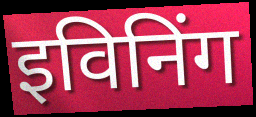
इविनिंग